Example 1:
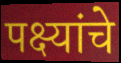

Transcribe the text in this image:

पक्ष्यांचे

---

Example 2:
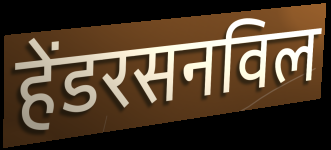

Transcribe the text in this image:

हेंडरसनविल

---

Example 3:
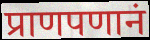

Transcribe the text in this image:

प्राणपणानं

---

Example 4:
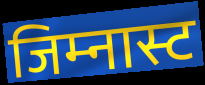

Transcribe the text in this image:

जिम्नास्ट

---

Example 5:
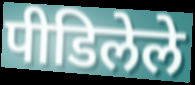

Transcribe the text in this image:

पीडिलेले